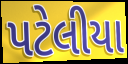
પટેલીયા